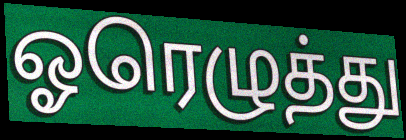
ஓரெழுத்து